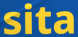
sita